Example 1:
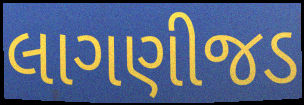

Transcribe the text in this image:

લાગણીજડ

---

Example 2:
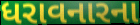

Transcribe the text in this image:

ધરાવનારના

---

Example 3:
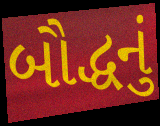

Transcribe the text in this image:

બૌદ્ધનું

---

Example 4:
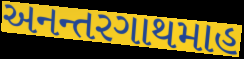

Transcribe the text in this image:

અનન્તરગાથમાહ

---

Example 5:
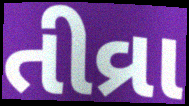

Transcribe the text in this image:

તીવ્રા